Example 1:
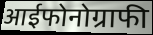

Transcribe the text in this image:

आईफोनोग्राफी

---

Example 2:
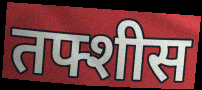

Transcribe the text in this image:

तफ्शीस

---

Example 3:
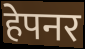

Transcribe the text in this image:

हेपनर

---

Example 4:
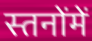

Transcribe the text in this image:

स्तनोंमें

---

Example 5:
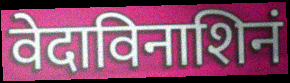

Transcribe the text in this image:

वेदाविनाशिनं